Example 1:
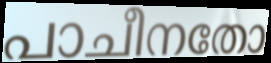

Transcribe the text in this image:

പാചീനതോ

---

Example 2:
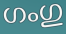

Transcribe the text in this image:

ഗംഗു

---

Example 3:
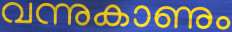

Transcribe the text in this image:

വന്നുകാണും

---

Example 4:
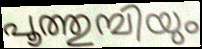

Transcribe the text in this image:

പൂത്തുമ്പിയും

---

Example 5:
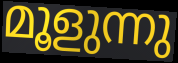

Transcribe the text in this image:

മൂളുന്നു